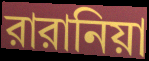
রারানিয়া